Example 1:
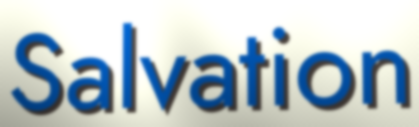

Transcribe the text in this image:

Salvation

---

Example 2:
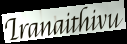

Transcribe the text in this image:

Iranaithivu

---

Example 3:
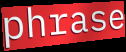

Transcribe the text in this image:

phrase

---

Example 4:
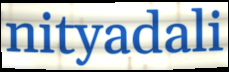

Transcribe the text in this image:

nityadali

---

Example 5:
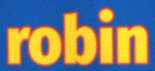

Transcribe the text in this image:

robin